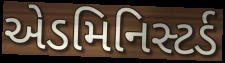
એડમિનિસ્ટર્ડ